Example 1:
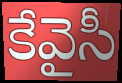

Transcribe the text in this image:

కేవైసీ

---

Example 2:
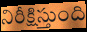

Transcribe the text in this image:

నిరీక్షిస్తుంది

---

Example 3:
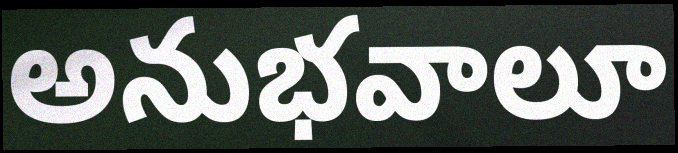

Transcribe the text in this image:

అనుభవాలూ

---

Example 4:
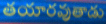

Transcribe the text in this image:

తయారవుతాడు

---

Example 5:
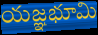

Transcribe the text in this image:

యజ్ఞభూమి